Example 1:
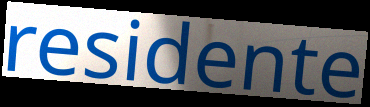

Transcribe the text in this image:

residente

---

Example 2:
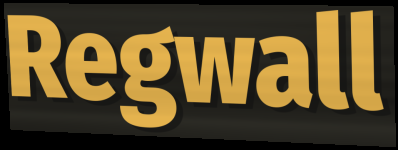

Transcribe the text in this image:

Regwall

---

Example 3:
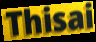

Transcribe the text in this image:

Thisai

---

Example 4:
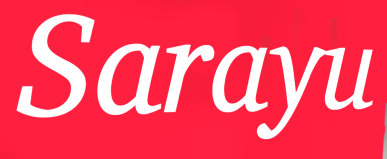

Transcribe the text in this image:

Sarayu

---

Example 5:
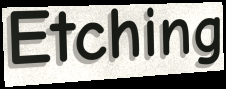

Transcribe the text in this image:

Etching